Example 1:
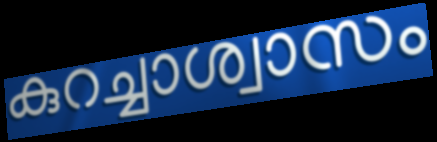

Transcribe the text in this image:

കുറച്ചാശ്വാസം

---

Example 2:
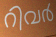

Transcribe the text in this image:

റിവർ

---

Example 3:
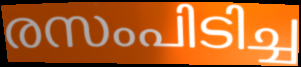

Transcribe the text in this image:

രസംപിടിച്ച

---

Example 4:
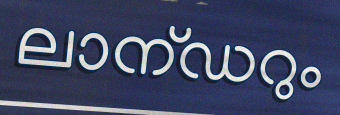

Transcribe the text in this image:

ലാന്ഡറും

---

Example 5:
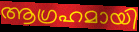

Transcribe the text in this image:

ആഗ്രഹമായി